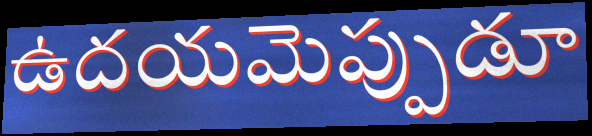
ఉదయమెప్పుడూ